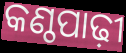
କଣ୍ଠପାଢ଼ୀ